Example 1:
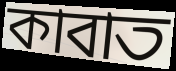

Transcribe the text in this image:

কাবাত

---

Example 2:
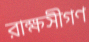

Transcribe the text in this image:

রাক্ষসীগণ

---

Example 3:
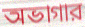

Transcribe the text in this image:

অভাগার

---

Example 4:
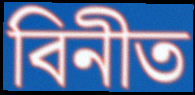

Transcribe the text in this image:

বিনীত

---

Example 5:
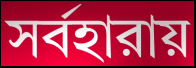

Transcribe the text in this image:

সর্বহারায়